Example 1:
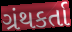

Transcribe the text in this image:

ગ્રંથકર્તા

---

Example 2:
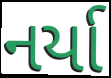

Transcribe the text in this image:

નર્યા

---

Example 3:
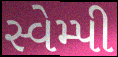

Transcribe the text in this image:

સ્વેમ્પી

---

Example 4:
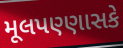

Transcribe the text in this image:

મૂલપણ્ણાસકે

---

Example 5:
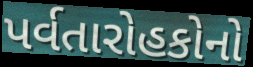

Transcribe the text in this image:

પર્વતારોહકોનો